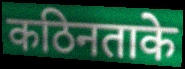
कठिनताके